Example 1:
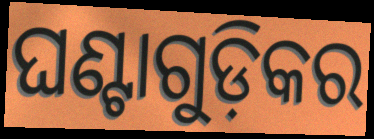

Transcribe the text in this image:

ଘଣ୍ଟାଗୁଡ଼ିକର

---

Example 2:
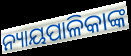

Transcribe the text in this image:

ନ୍ୟାୟପାଳିକାଙ୍କ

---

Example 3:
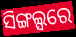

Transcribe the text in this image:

ସିଙ୍ଗଲ୍ସରେ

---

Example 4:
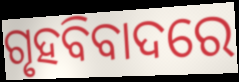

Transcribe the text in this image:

ଗୃହବିବାଦରେ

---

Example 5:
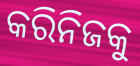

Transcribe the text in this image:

କରିନିଜକୁ